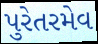
પુરેતરમેવ